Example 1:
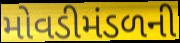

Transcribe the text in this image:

મોવડીમંડળની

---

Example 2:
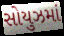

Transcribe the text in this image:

સોયુઝમાં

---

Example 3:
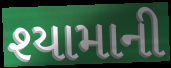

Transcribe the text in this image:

શ્યામાની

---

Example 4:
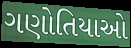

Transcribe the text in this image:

ગણોતિયાઓ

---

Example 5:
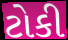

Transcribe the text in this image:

ટોકી